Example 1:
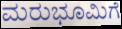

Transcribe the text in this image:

ಮರುಭೂಮಿಗೆ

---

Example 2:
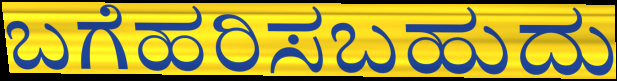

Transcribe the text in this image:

ಬಗೆಹರಿಸಬಹುದು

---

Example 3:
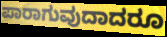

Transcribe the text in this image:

ಪಾರಾಗುವುದಾದರೂ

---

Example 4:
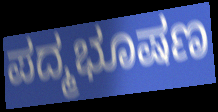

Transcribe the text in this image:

ಪದ್ಮಭೂಷಣ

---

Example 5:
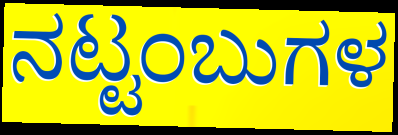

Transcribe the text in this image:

ನಟ್ಟಂಬುಗಳ